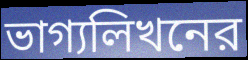
ভাগ্যলিখনের